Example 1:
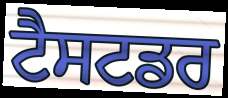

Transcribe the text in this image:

ਟੈਸਟਡਰ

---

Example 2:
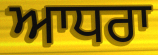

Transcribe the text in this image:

ਆਧਰਾ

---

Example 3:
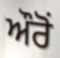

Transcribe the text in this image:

ਔਰੋਂ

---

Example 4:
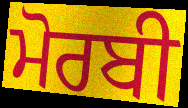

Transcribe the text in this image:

ਮੋਰਬੀ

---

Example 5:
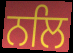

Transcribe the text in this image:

ਨਲਿ